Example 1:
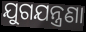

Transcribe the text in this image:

ଯୁଗଯନ୍ତ୍ରଣା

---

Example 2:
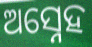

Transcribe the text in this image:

ଅସ୍ନେହ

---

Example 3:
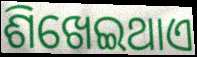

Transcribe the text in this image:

ଶିଖେଇଥାଏ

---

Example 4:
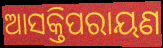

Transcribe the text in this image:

ଆସକ୍ତିପରାୟଣ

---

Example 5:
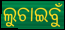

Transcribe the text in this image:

ଲୁଚାଇବୁଁ